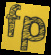
fp